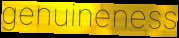
genuineness